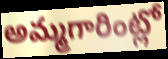
అమ్మగారింట్లో